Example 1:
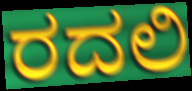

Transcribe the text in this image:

ರದಲಿ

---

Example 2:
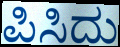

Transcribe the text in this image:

ಪಿಸಿದು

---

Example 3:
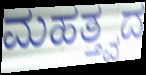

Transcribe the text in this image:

ಮಹತ್ತ್ವದ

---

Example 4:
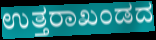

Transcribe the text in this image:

ಉತ್ತರಾಖಂಡದ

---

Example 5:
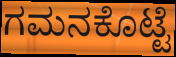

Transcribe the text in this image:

ಗಮನಕೊಟ್ಟೆ